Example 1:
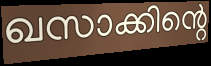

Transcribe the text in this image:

ഖസാക്കിന്റെ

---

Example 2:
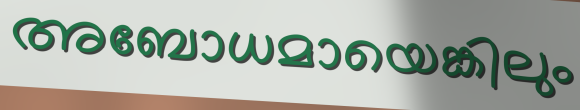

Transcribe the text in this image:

അബോധമായെങ്കിലും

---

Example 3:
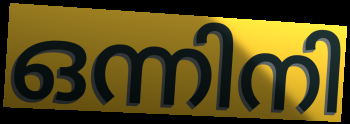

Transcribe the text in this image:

ഒന്നിനി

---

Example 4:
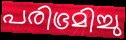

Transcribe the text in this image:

പരിഭ്രമിച്ചു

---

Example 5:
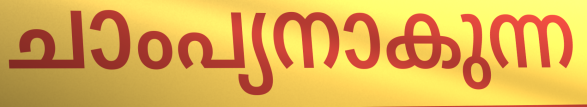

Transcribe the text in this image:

ചാംപ്യനാകുന്ന